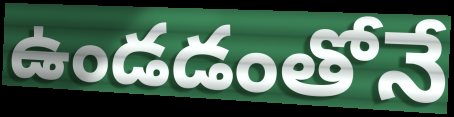
ఉండడంతోనే